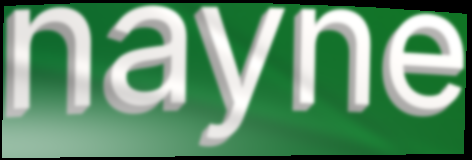
nayne